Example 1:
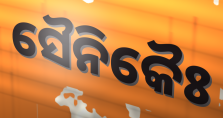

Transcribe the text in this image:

ସୈନିକୈଃ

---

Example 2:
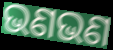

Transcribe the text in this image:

ଭଣଭଣ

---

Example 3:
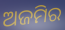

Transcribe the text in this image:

ଅଜମିର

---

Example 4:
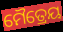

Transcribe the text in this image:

ମୈତ୍ରେୟ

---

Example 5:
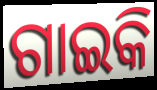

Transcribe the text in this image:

ଗାଇକି